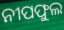
ନୀପଫୁଲ